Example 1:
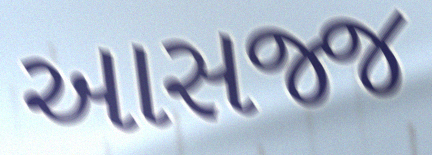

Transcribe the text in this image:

આસજ્જ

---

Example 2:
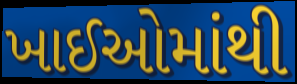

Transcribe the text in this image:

ખાઈઓમાંથી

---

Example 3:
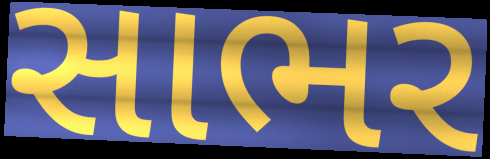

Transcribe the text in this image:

સાભર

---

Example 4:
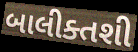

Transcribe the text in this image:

બાલીક્તશી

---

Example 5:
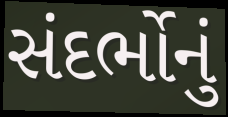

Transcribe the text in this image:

સંદર્ભોનું